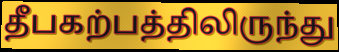
தீபகற்பத்திலிருந்து